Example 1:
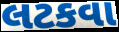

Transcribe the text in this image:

લટકવા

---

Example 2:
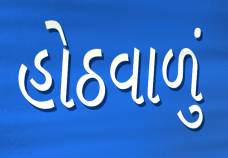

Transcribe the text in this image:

હોઠવાળું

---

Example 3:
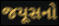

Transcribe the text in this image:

જયૂસનો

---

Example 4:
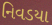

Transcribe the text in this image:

નિવડયા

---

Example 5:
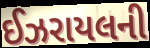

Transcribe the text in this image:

ઈઝરાયલની